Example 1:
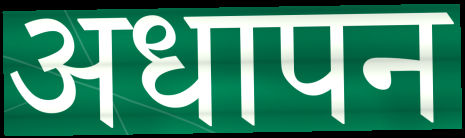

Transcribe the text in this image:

अधापन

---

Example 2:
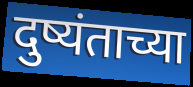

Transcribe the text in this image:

दुष्यंताच्या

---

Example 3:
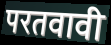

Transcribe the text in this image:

परतवावी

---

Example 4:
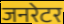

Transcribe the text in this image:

जनरेटर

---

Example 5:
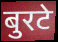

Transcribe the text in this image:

बुरटे